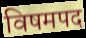
विषमपद